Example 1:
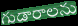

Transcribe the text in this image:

గుడారాలను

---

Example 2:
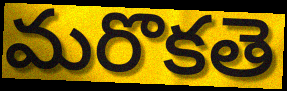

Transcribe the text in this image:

మరొకతె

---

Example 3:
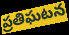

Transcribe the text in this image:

ప్రతిఘటన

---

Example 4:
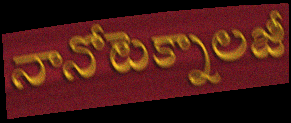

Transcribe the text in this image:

నానోటెక్నాలజీ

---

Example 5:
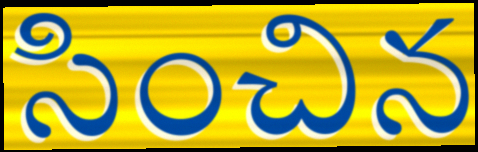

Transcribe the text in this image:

సించిన